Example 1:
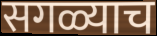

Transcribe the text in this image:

सगळ्याच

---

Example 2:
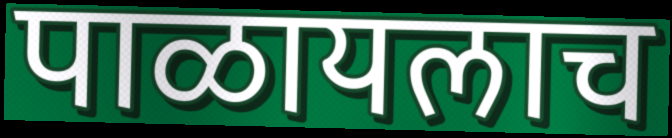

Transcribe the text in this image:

पाळायलाच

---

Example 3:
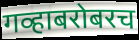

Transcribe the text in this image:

गव्हाबरोबरच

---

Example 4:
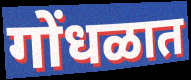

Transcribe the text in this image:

गोंधळात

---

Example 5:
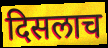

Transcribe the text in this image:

दिसलाच